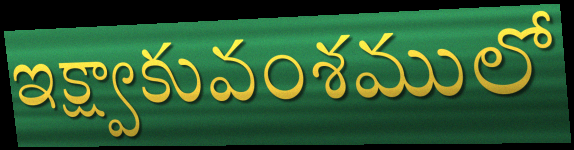
ఇక్ష్వాకువంశములో